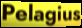
Pelagius